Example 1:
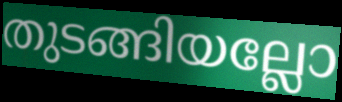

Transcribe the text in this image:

തുടങ്ങിയല്ലോ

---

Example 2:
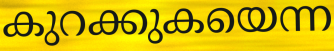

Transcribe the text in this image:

കുറക്കുകയെന്ന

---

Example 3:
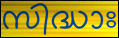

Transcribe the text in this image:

സിദ്ധാഃ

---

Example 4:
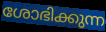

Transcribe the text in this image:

ശോഭിക്കുന്ന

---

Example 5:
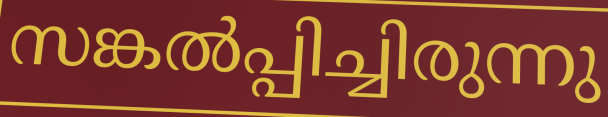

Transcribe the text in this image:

സങ്കൽപ്പിച്ചിരുന്നു